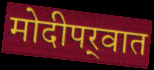
मोदीपर्वात